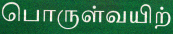
பொருள்வயிற்